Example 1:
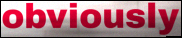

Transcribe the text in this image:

obviously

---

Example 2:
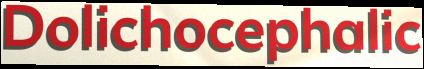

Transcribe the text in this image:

Dolichocephalic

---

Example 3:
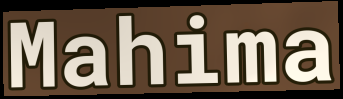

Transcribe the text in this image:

Mahima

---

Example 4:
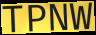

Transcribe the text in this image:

TPNW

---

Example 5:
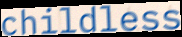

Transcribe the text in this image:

childless